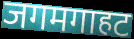
जगमगाहट